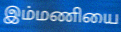
இம்மணியை